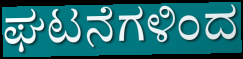
ಘಟನೆಗಳಿಂದ